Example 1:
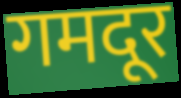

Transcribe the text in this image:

गमदूर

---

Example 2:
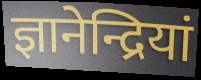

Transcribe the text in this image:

ज्ञानेन्द्रियां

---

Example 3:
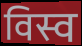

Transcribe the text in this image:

विस्व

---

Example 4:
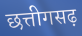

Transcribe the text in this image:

छत्तीगसढ़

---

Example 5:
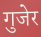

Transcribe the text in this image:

गुजेर